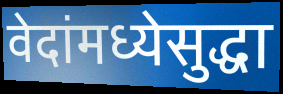
वेदांमध्येसुद्धा